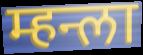
म्हन्ला